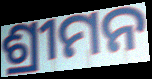
ଶ୍ରୀମନ